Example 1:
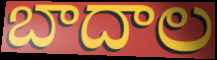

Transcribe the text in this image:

బాదాల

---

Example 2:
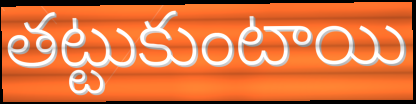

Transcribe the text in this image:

తట్టుకుంటాయి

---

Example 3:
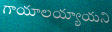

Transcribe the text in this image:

గాయాలయ్యాయని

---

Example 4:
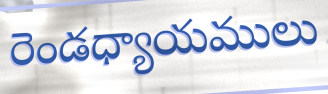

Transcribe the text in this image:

రెండధ్యాయములు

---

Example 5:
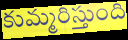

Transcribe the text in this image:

కుమ్మరిస్తుంది